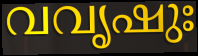
വവൃഷുഃ